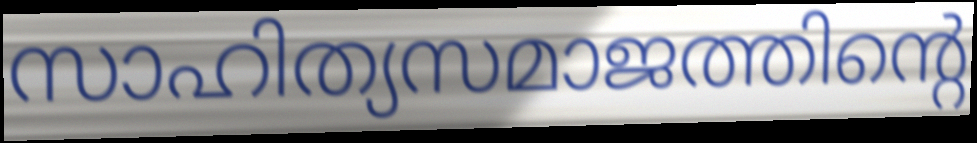
സാഹിത്യസമാജത്തിന്റെ